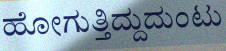
ಹೋಗುತ್ತಿದ್ದುದುಂಟು